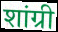
शांग्री